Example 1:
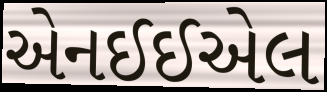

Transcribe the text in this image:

એનઈઈએલ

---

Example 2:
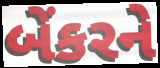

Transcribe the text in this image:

બેંકરને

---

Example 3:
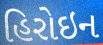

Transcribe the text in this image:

હિરોઇન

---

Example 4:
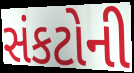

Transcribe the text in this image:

સંકટોની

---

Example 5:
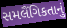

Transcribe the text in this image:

સમલૈંગિકતાનું